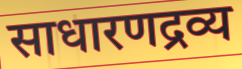
साधारणद्रव्य